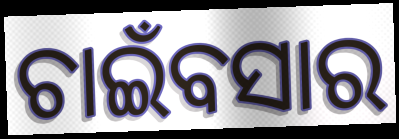
ଚାଇଁବସାର